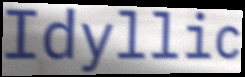
Idyllic